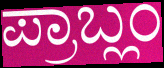
ಪ್ರಾಬ್ಲಂ